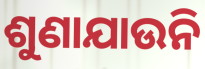
ଶୁଣାଯାଉନି